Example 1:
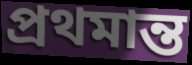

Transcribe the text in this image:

প্ৰথমান্ত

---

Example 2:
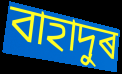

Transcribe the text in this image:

বাহাদুৰ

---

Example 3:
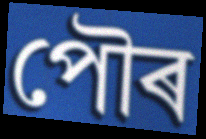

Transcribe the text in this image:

পৌৰ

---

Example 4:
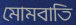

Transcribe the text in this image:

মোমবাতি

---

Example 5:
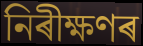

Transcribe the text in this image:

নিৰীক্ষণৰ